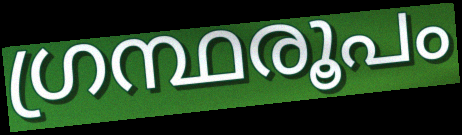
ഗ്രന്ഥരൂപം